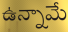
ఉన్నామే